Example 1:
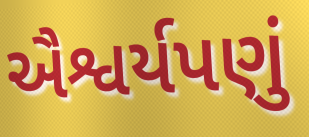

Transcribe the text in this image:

ઐશ્વર્યપણું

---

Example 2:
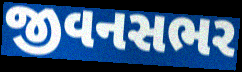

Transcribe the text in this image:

જીવનસભર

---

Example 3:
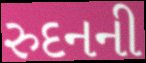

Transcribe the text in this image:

રુદનની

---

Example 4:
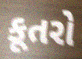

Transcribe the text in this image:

કૂતરો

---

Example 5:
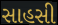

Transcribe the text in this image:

સાહસી